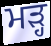
ਮੜ੍ਹ